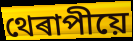
থেৰাপীয়ে